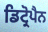
ਡਿਟ੍ਰੋਪੈਨ